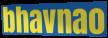
bhavnao